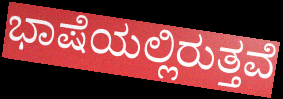
ಭಾಷೆಯಲ್ಲಿರುತ್ತವೆ